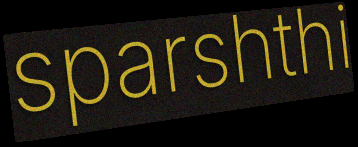
sparshthi